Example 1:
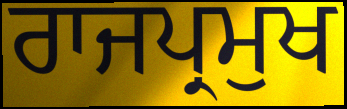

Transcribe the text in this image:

ਰਾਜਪ੍ਰਮੁਖ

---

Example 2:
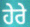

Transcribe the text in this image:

ਹੇਰੇ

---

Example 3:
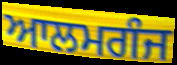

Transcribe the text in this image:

ਆਲਮਗੰਜ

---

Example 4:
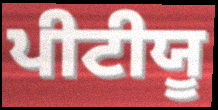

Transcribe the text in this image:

ਪੀਟੀਯੂ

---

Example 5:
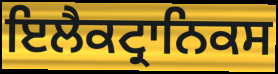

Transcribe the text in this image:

ਇਲੈਕਟ੍ਰਾਨਿਕਸ